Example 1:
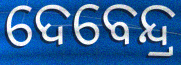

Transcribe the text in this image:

ଦେବେନ୍ଦ୍ର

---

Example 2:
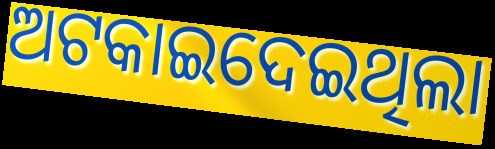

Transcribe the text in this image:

ଅଟକାଇଦେଇଥିଲା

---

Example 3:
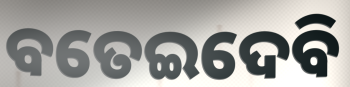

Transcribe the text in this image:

ବତେଇଦେବି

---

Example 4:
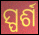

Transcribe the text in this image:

ସ୍ପର୍ଶ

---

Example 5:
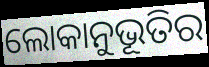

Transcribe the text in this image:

ଲୋକାନୁଭୂତିର